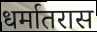
धर्मातरास